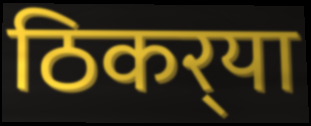
ठिकर्‍या